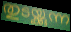
തുടയ്ക്കുന്ന